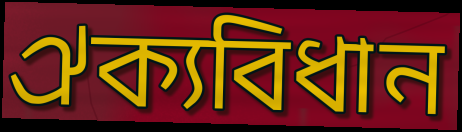
ঐক্যবিধান